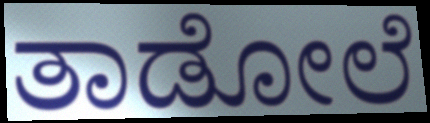
ತಾಡೋಲೆ